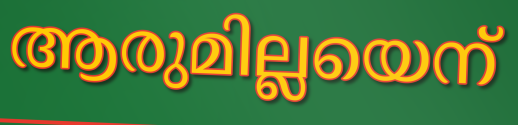
ആരുമില്ലയെന്